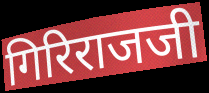
गिरिराजजी